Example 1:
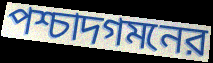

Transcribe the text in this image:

পশ্চাদগমনের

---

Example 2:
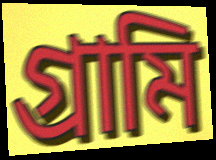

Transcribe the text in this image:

গ্রামি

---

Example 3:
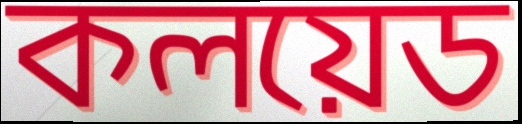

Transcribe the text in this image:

কলয়েড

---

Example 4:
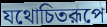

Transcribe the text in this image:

যথোচিতরূপে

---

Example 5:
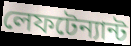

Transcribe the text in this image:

লেফটেন্যান্ট